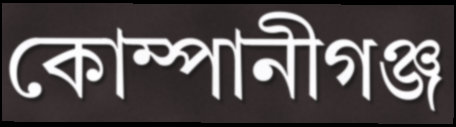
কোম্পানীগঞ্জ